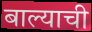
बाल्याची